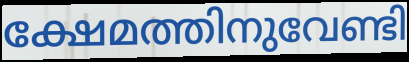
ക്ഷേമത്തിനുവേണ്ടി